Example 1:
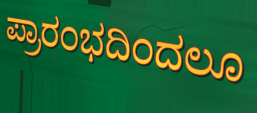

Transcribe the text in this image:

ಪ್ರಾರಂಭದಿಂದಲೂ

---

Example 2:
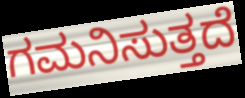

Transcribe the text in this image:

ಗಮನಿಸುತ್ತದೆ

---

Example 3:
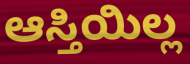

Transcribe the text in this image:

ಆಸ್ತಿಯಿಲ್ಲ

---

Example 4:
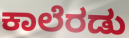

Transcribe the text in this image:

ಕಾಲೆರಡು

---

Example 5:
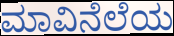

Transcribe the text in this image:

ಮಾವಿನೆಲೆಯ